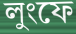
লুংফে